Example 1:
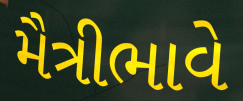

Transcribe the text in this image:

મૈત્રીભાવે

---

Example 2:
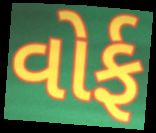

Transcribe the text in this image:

વોર્ફ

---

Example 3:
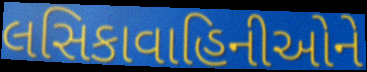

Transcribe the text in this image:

લસિકાવાહિનીઓને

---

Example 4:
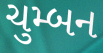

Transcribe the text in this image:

ચુમ્બન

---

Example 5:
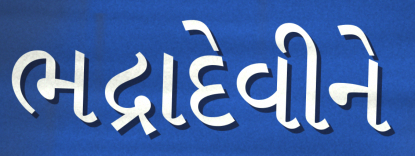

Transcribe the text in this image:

ભદ્રાદેવીને